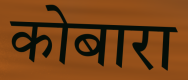
कोबारा